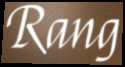
Rang